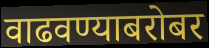
वाढवण्याबरोबर